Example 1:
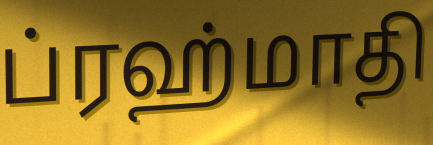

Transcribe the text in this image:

ப்ரஹ்மாதி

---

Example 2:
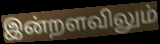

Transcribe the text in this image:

இன்றளவிலும்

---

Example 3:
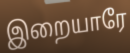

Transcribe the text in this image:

இறையாரே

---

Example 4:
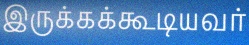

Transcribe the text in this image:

இருக்கக்கூடியவர்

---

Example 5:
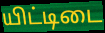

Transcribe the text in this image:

யிட்டிடை